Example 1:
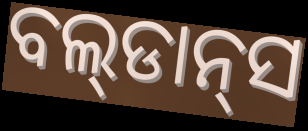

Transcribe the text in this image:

ବଲ୍‌ଡାନ୍‌ସ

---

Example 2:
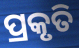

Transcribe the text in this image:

ପ୍ରକୃତି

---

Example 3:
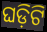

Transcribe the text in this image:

ଘଡ଼ିଟି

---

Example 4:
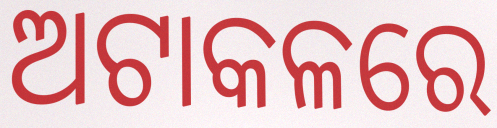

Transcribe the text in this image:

ଅଟାକଳରେ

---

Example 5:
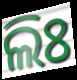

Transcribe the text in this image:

ଲିଃ